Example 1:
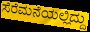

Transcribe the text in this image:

ಸೆರೆಮನೆಯಲ್ಲಿದ್ದು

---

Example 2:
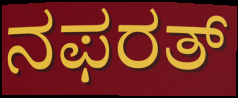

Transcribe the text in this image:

ನಫರತ್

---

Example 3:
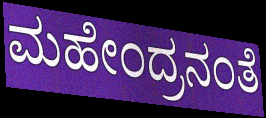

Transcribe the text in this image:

ಮಹೇಂದ್ರನಂತೆ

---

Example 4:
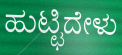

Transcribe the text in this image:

ಹುಟ್ಟಿದೇಳು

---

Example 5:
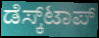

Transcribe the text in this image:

ಡೆಸ್ಕ್‌ಟಾಪ್